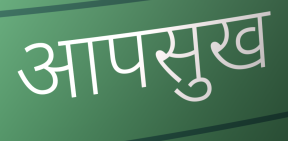
आपसुख